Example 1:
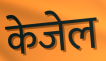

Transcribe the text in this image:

केजेल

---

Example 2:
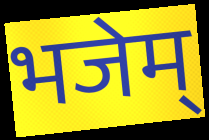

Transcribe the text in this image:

भजेम्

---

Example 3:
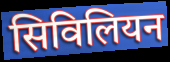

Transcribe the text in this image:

सिविलियन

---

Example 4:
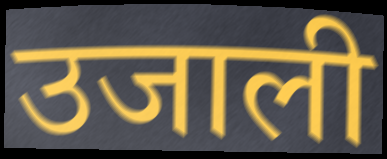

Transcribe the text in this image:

उजाली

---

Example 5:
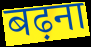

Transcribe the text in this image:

बढ़ना